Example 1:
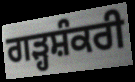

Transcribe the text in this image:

ਗੜ੍ਹਸ਼ੰਕਰੀ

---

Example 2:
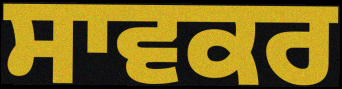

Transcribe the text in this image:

ਸਾਵਕਰ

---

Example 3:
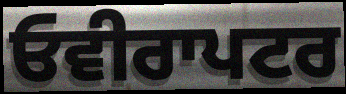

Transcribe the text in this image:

ਓਵੀਰਾਪਟਰ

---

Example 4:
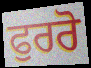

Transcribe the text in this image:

ਫੁਰਰੋ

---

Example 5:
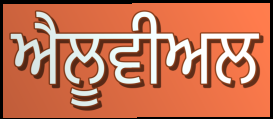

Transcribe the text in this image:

ਐਲੂਵੀਅਲ